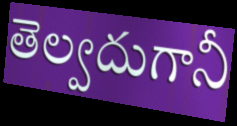
తెల్వదుగానీ